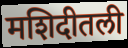
मशिदीतली